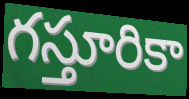
గస్తూరికా